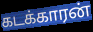
கடக்காரன்